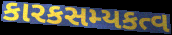
કારકસમ્યકત્વ